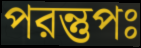
পরন্তুপঃ